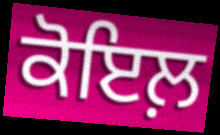
ਕੋਇਲ਼